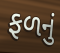
ફળનું